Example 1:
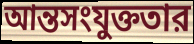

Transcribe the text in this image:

আন্তসংযুক্ততার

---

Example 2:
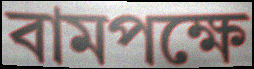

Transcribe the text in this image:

বামপক্ষে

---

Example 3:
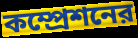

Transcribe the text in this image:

কম্প্রেশনের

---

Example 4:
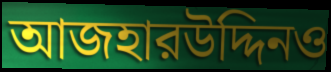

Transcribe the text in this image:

আজহারউদ্দিনও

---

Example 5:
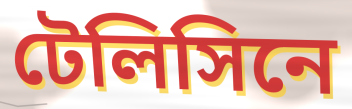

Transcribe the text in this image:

টেলিসিনে